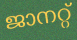
ജാനറ്റ്